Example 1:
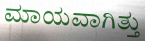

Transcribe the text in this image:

ಮಾಯವಾಗಿತ್ತು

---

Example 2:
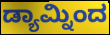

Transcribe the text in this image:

ಡ್ಯಾಮ್ನಿಂದ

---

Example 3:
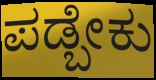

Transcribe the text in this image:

ಪಡ್ಬೇಕು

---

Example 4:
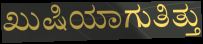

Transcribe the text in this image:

ಖುಷಿಯಾಗುತಿತ್ತು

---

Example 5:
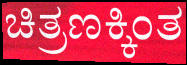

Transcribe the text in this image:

ಚಿತ್ರಣಕ್ಕಿಂತ